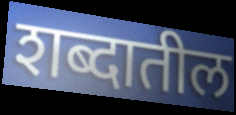
शब्दातील